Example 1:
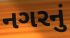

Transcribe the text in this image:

નગરનું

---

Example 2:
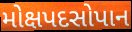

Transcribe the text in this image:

મોક્ષપદસોપાન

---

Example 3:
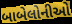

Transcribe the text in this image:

બાબેલોનીઓ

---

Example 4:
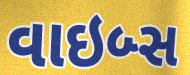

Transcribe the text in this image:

વાઇબ્સ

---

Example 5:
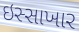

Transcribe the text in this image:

ઇસ્સાખાર